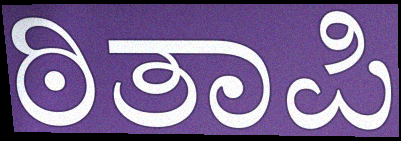
ಠಿತಾಪಿ